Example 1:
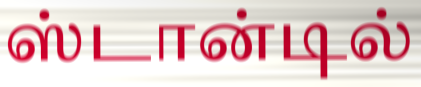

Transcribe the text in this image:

ஸ்டான்டில்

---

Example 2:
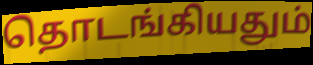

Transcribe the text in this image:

தொடங்கியதும்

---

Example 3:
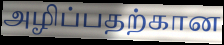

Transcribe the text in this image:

அழிப்பதற்கான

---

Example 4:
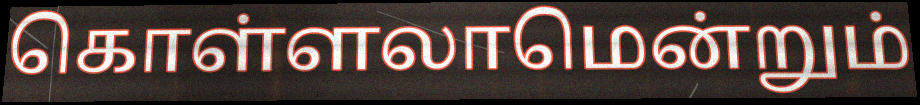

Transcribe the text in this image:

கொள்ளலாமென்றும்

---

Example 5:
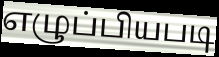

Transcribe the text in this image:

எழுப்பியபடி